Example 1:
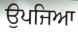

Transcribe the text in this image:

ਉਪਜਿਆ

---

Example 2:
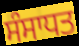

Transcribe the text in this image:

ਸੰਸਾਧਤ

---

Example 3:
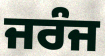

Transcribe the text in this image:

ਜਰੰਜ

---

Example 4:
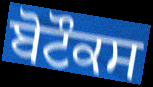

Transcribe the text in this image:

ਬੋਟੌਕਸ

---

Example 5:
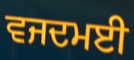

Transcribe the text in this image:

ਵਜਦਮਈ